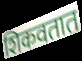
शिकवतात